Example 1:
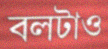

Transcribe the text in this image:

বলটাও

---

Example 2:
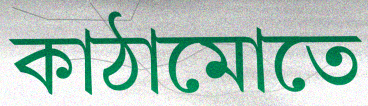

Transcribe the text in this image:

কাঠামোতে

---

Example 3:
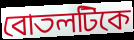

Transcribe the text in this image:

বোতলটিকে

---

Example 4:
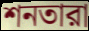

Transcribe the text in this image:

শনতারা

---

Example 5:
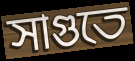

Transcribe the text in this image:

সাগুতে